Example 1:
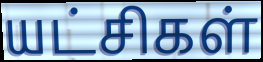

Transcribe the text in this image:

யட்சிகள்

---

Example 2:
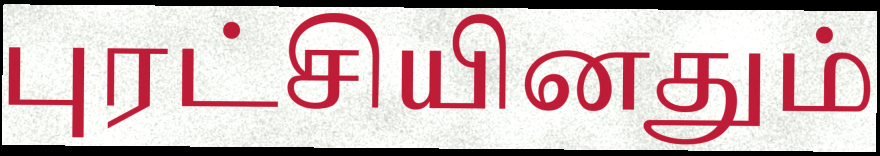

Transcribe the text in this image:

புரட்சியினதும்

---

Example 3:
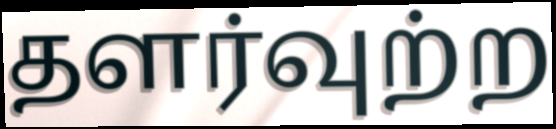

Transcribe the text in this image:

தளர்வுற்ற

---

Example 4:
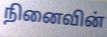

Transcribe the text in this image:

நினைவின்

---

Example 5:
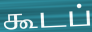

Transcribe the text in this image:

கூடப்